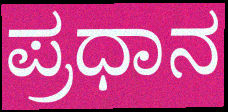
ಪ್ರಧಾನ